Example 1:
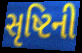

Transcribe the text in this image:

સૃષ્ટિની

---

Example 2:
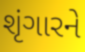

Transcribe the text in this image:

શૃંગારને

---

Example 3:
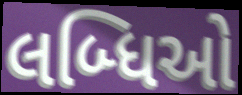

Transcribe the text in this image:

લબ્ધિઓ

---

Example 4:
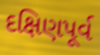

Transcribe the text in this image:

દક્ષિણપૂર્વ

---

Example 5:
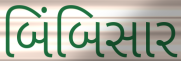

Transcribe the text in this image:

બિંબિસાર